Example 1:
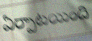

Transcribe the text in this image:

ఏర్పాటయింది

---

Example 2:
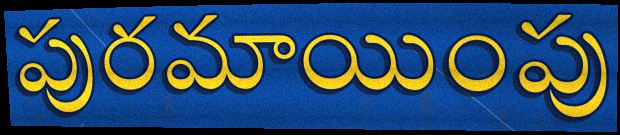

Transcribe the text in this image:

పురమాయింపు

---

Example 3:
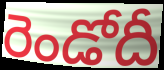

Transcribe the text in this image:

రెండోదీ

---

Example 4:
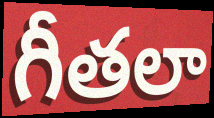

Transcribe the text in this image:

గీతలా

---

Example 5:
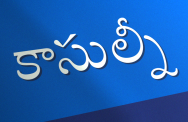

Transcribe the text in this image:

కాసుల్నీ